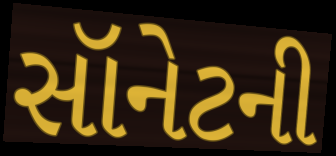
સૉનેટની